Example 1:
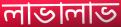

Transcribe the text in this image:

লাভালাভ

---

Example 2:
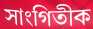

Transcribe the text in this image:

সাংগিতীক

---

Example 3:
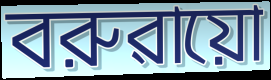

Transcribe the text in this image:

বৰুৱায়ো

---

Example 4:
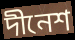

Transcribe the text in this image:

দীনেশ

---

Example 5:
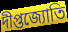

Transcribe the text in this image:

দীপ্তজ্যোতি